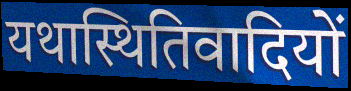
यथास्थितिवादियों